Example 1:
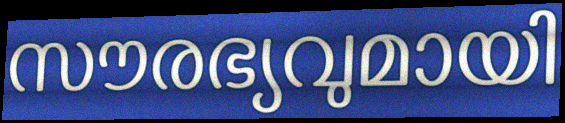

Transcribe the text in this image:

സൗരഭ്യവുമായി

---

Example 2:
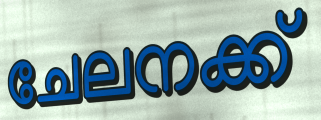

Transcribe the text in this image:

ചേലനക്ക്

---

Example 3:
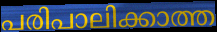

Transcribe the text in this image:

പരിപാലിക്കാത്ത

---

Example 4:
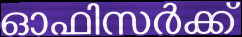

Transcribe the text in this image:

ഓഫിസർക്ക്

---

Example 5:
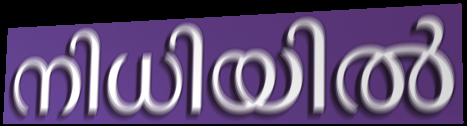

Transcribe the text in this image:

നിധിയിൽ